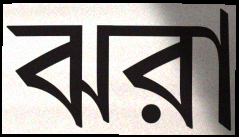
ঝরা